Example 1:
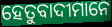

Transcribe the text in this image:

ହେତୁବାଦୀମାନେ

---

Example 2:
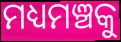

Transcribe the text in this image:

ମଧ୍ୟମଞ୍ଚକୁ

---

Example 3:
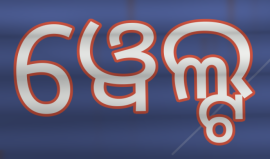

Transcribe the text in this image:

ୱେଲ୍ଟ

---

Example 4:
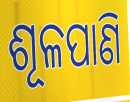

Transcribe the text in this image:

ଶୂଳପାଣି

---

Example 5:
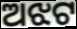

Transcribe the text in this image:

ଅଝଟ